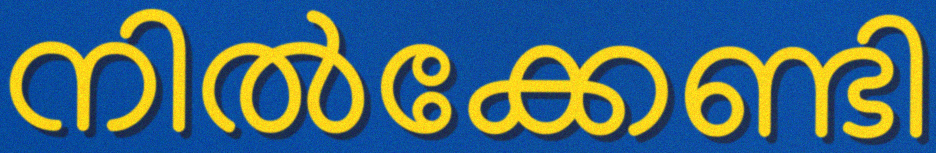
നിൽക്കേണ്ടി